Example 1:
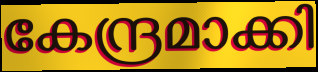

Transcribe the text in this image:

കേന്ദ്രമാക്കി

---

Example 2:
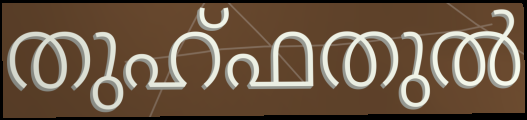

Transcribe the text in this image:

തുഹ്ഫതുൽ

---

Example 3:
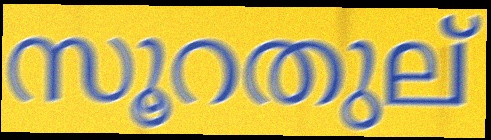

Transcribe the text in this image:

സൂറതുല്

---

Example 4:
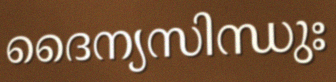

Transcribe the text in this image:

ദൈന്യസിന്ധുഃ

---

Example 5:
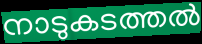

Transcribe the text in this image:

നാടുകടത്തൽ